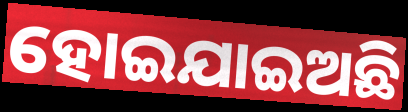
ହୋଇଯାଇଅଛି